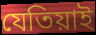
যেতিয়াই